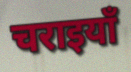
चराइयाँ